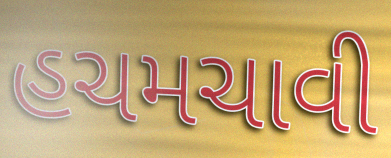
હચમચાવી